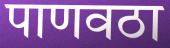
पाणवठा